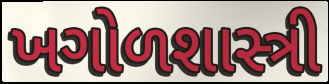
ખગોળશાસ્ત્રી